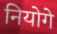
नियोगे